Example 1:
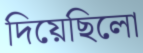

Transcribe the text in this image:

দিয়েছিলো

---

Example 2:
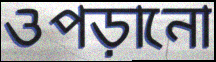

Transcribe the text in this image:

ওপড়ানো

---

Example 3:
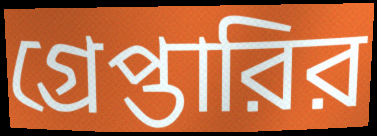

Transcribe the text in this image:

গ্রেপ্তারির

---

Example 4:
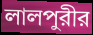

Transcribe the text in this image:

লালপুরীর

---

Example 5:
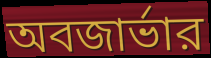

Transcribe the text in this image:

অবজার্ভার